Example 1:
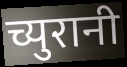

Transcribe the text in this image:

च्युरानी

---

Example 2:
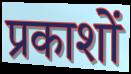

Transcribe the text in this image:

प्रकाशों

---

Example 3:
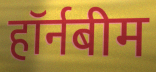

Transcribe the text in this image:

हॉर्नबीम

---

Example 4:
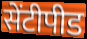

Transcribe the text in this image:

सेंटीपीड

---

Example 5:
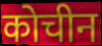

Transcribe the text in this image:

कोचीन